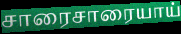
சாரைசாரையாய்